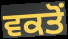
ਵਕਤੋਂ